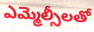
ఎమ్మెల్సీలతో